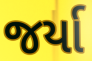
જર્યા